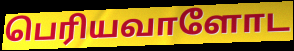
பெரியவாளோட